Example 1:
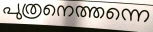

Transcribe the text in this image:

പുത്രനെത്തന്നെ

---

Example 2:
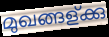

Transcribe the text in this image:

മുഖങ്ങള്ക്കു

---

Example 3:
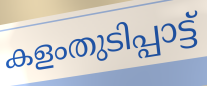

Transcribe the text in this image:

കളംതുടിപ്പാട്ട്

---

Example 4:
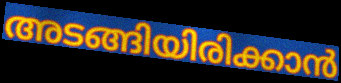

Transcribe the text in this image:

അടങ്ങിയിരിക്കാൻ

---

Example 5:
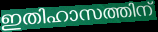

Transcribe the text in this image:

ഇതിഹാസത്തിന്